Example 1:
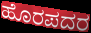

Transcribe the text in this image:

ಹೊರಪದರ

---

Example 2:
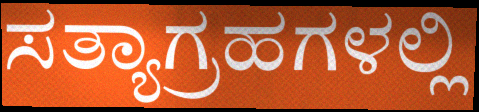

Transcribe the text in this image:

ಸತ್ಯಾಗ್ರಹಗಳಲ್ಲಿ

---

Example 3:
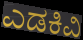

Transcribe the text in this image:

ಎಡಕಿವಿ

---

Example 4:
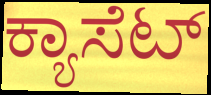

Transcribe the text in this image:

ಕ್ಯಾಸೆಟ್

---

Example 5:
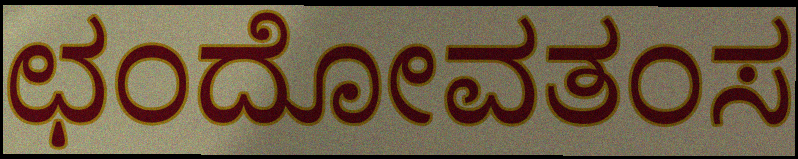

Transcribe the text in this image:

ಛಂದೋವತಂಸ